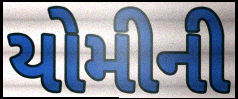
યોમીની